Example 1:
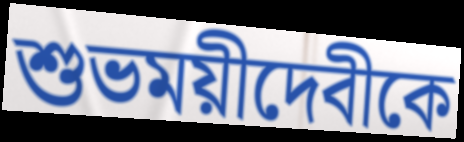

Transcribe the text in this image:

শুভময়ীদেবীকে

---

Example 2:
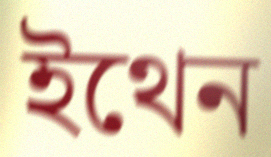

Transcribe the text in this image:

ইথেন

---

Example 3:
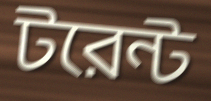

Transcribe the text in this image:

টরেন্ট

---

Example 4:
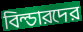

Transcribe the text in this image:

বিল্ডারদের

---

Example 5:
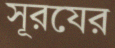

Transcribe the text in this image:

সূরযের